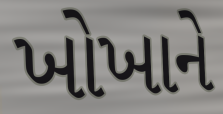
ખોખાને